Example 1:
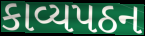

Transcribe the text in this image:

કાવ્યપઠન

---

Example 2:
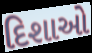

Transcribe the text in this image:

દિશાઓ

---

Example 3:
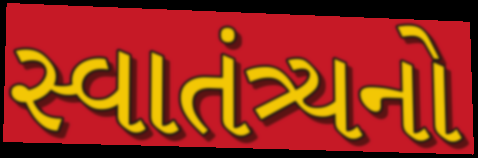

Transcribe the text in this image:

સ્વાતંત્ર્યનો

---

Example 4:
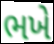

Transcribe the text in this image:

ભખે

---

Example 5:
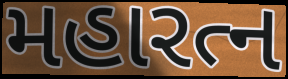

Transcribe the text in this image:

મહારત્ન